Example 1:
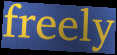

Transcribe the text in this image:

freely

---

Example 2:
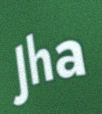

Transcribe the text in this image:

Jha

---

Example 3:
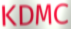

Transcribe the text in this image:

KDMC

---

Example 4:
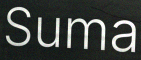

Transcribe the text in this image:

Suma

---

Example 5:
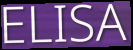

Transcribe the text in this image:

ELISA